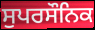
ਸੁਪਰਸੌਨਿਕ